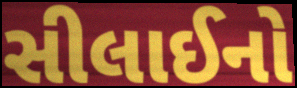
સીલાઈનો